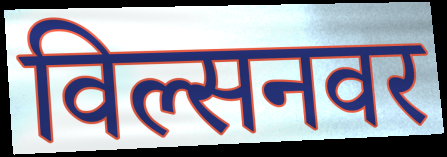
विल्सनवर